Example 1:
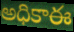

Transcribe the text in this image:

అధికాఈ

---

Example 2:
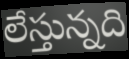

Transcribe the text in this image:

లేస్తున్నది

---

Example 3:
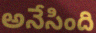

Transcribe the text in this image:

అనేసింది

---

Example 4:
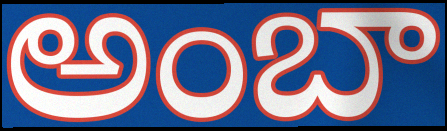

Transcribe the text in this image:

అంబా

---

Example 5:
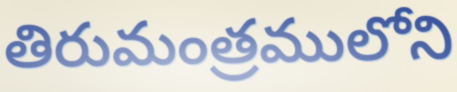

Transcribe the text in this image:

తిరుమంత్రములోని